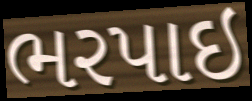
ભરપાઇ